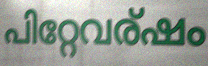
പിറ്റേവര്ഷം